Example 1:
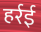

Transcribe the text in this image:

हर्रई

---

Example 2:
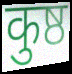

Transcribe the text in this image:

कुष्ठ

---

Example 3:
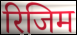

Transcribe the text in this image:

रिजिम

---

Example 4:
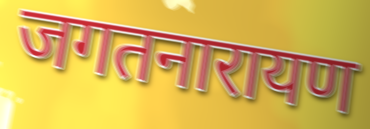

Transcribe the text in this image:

जगतनारायण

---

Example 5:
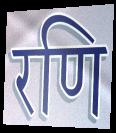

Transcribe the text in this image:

रणि